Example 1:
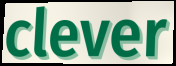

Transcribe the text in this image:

clever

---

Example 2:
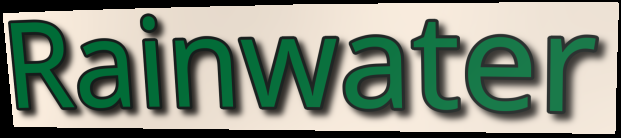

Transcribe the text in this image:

Rainwater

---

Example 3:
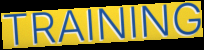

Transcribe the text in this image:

TRAINING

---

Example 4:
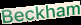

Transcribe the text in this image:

Beckham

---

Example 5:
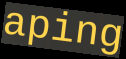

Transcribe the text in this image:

aping